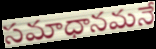
సమాధానమనే